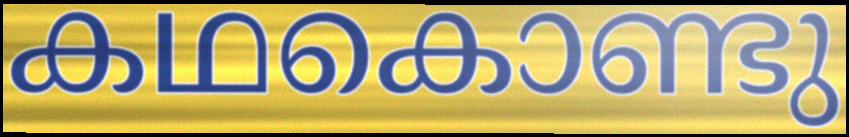
കഥകൊണ്ടു